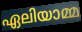
ഏലിയാമ്മ